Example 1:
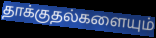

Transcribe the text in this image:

தாக்குதல்களையும்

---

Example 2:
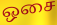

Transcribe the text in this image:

ஒசை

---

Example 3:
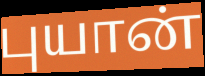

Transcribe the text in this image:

புயான்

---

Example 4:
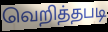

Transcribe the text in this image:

வெறித்தபடி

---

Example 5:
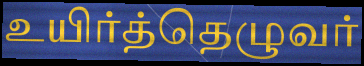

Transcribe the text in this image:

உயிர்த்தெழுவர்